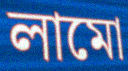
লামো